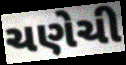
ચણેચી